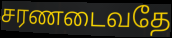
சரணடைவதே